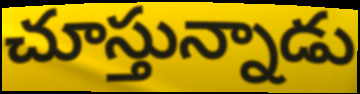
చూస్తున్నాడు